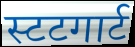
स्टटगार्ट